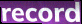
record